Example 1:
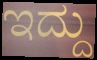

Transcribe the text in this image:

ಇದ್ದು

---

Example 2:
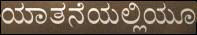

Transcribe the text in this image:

ಯಾತನೆಯಲ್ಲಿಯೂ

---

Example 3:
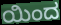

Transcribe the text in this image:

ಯಿಂದ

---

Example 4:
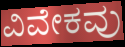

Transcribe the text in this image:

ವಿವೇಕವು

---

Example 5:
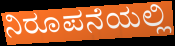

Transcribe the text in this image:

ನಿರೂಪನೆಯಲ್ಲಿ